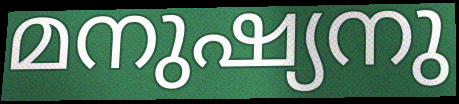
മനുഷ്യനു